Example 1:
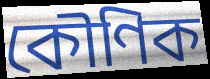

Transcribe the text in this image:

কৌণিক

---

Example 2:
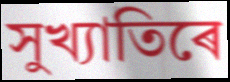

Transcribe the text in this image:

সুখ্যাতিৰে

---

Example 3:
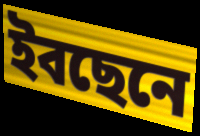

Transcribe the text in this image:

ইবছেনে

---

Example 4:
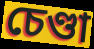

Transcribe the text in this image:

চেণ্ডা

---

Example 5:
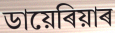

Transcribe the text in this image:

ডায়েৰিয়াৰ